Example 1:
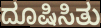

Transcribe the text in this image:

ದೂಷಿಸಿತು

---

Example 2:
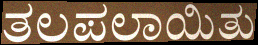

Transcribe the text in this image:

ತಲಪಲಾಯಿತು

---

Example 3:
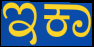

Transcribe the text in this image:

ಇಕಾ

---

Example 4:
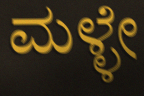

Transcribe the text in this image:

ಮಳ್ಳೇ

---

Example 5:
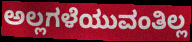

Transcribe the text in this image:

ಅಲ್ಲಗಳೆಯುವಂತಿಲ್ಲ